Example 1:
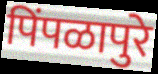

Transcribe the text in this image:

पिंपळापुरे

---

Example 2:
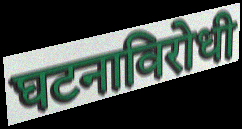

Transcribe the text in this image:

घटनाविरोधी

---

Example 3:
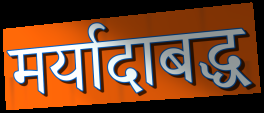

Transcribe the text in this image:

मर्यादाबद्ध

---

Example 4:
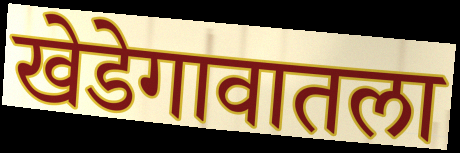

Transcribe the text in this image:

खेडेगावातला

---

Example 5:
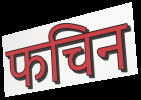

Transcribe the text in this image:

फचिन